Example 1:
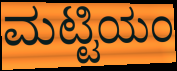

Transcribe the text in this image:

ಮಟ್ಟಿಯಂ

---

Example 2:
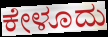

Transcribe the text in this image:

ಕೇಳೂದು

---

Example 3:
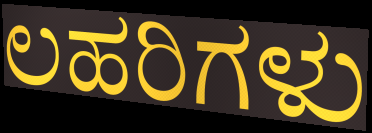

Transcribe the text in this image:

ಲಹರಿಗಳು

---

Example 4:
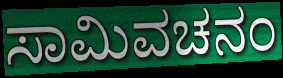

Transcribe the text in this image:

ಸಾಮಿವಚನಂ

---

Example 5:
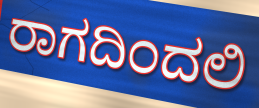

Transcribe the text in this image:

ರಾಗದಿಂದಲಿ